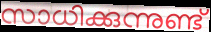
സാധിക്കുന്നുണ്ട്